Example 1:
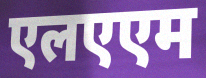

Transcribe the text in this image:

एलएएम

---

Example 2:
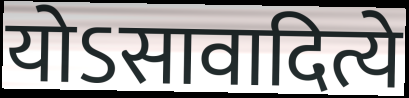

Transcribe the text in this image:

योऽसावादित्ये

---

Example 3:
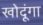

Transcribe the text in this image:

खोदूंगा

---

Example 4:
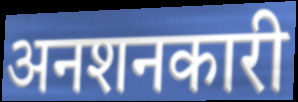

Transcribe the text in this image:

अनशनकारी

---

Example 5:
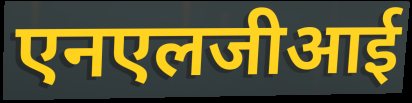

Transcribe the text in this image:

एनएलजीआई